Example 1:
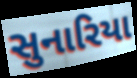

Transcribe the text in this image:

સુનારિયા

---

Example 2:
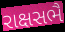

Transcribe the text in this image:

રાક્ષસભૈ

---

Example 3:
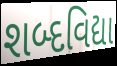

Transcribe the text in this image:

શબ્દવિદ્યા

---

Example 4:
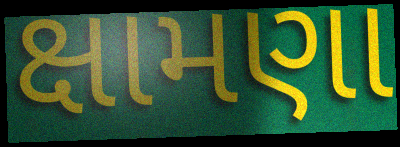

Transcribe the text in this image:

ક્ષામણા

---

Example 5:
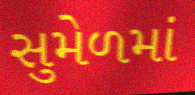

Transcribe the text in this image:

સુમેળમાં